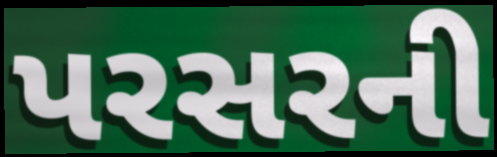
પરસરની